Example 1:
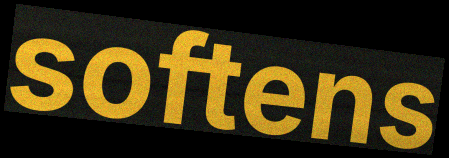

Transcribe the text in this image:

softens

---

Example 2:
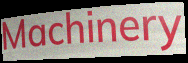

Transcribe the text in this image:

Machinery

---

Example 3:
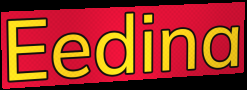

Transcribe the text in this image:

Eedina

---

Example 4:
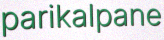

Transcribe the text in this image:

parikalpane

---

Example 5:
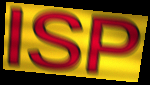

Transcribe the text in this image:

ISP